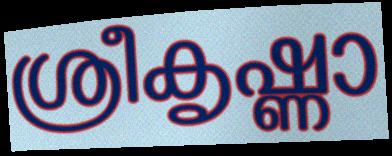
ശ്രീകൃഷ്ണാ